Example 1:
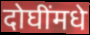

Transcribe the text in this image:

दोघींमधे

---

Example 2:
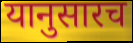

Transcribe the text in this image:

यानुसारच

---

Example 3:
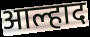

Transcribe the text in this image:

आल्हाद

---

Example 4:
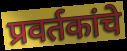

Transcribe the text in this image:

प्रवर्तकांचे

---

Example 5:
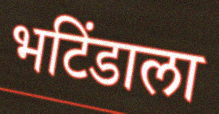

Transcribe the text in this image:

भटिंडाला